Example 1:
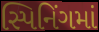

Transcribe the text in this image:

સ્પિનિંગમાં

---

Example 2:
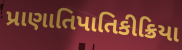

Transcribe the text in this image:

પ્રાણાતિપાતિકીક્રિયા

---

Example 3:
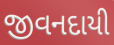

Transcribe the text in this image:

જીવનદાયી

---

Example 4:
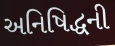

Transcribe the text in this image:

અનિષિદ્ધની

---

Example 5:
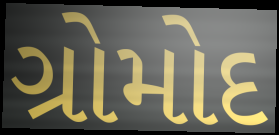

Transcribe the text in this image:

ગ્રોમોદ